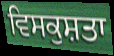
ਵਿਸਕੁਸ਼ਤਾ